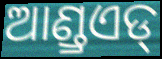
ଆଣ୍ଡ୍ରଏଡ୍